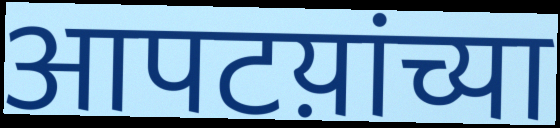
आपटय़ांच्या